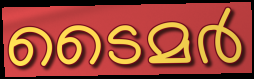
ടൈമർ